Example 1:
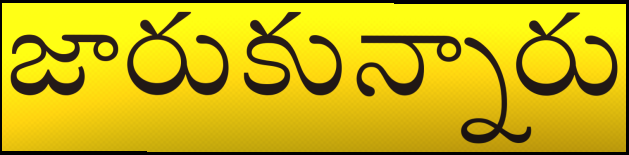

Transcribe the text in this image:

జారుకున్నారు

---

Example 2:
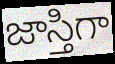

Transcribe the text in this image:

జాస్తిగా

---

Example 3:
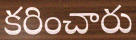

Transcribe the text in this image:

కరించారు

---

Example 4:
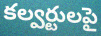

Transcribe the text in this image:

కల్వర్టులపై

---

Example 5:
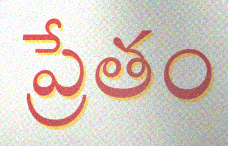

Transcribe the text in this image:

ప్రేతం